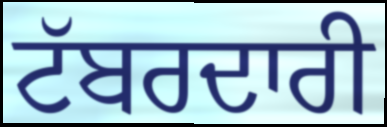
ਟੱਬਰਦਾਰੀ